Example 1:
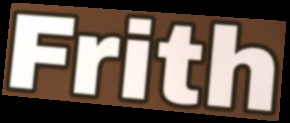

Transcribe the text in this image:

Frith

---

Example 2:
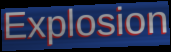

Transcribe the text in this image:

Explosion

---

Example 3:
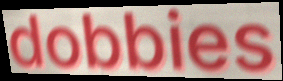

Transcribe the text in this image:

dobbies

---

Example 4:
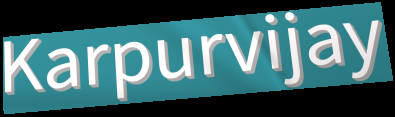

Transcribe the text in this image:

Karpurvijay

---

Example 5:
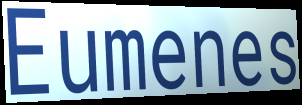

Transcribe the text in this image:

Eumenes